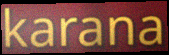
karana